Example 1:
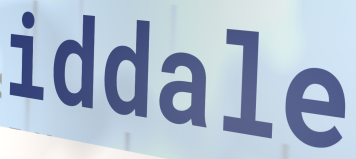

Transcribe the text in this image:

iddale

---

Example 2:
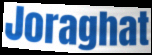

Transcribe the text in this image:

Joraghat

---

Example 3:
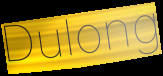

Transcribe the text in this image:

Dulong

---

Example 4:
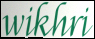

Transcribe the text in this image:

wikhri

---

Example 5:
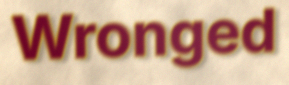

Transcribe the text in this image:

Wronged